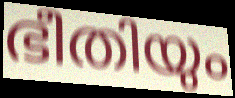
ഭീതിയും